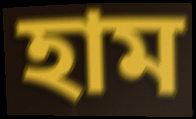
হাম